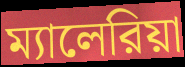
ম্যালেরিয়া